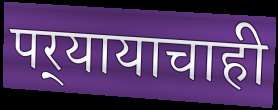
पर्यायाचाही